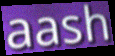
aash